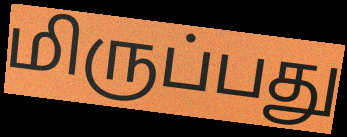
மிருப்பது